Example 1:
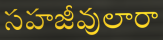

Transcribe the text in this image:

సహజీవులారా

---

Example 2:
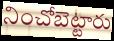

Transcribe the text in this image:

నించోబెట్టారు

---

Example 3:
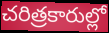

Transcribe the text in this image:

చరిత్రకారుల్లో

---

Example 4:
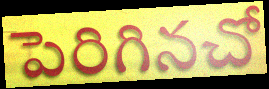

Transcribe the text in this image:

పెరిగినచో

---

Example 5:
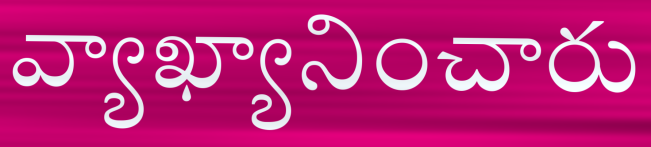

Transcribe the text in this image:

వ్యాఖ్యానించారు